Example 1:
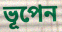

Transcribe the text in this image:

ভূপেন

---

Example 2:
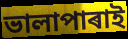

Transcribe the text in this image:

ভালাপাৰাই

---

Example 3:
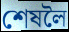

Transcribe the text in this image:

শেষলৈ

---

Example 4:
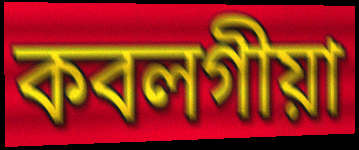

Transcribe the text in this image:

কবলগীয়া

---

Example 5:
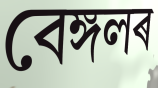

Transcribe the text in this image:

বেঙ্গলৰ